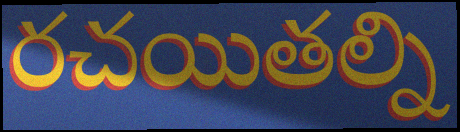
రచయితల్ని